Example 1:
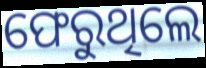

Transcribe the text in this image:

ଫେରୁଥିଲେ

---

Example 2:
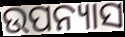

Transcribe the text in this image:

ଉପନ୍ୟାସ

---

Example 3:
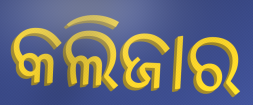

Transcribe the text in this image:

କଲିଜାର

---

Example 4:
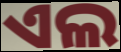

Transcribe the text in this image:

ଏଲ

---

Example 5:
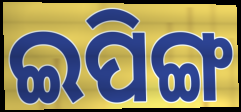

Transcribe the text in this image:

ଇପିଙ୍ଗ